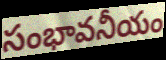
సంభావనీయం